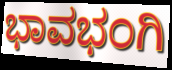
ಭಾವಭಂಗಿ